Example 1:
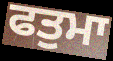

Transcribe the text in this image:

ਫਤੁਮਾ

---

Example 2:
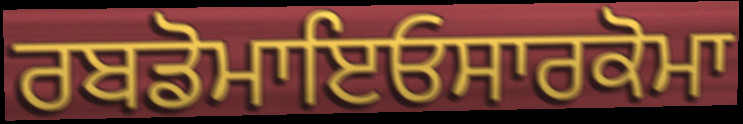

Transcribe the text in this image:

ਰਬਡੋਮਾਇਓਸਾਰਕੋਮਾ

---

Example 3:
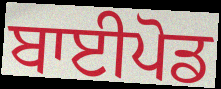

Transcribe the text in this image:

ਬਾਈਪੋਡ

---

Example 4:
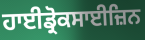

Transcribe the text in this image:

ਹਾਈਡ੍ਰੋਕਸਾਈਜ਼ਿਨ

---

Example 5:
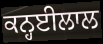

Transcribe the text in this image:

ਕਨ੍ਹਈਲਾਲ